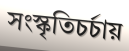
সংস্কৃতিচর্চায়